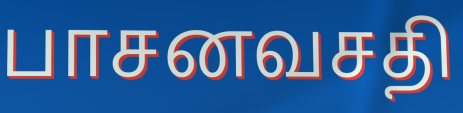
பாசனவசதி